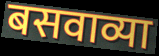
बसवाव्या